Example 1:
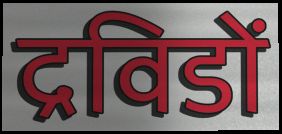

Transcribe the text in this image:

द्रविडों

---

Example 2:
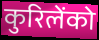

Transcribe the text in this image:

कुरिलेंको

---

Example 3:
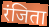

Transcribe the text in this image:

रंजिता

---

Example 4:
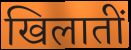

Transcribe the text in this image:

खिलातीं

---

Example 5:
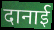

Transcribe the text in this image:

दानाई